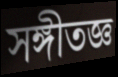
সঙ্গীতজ্ঞ